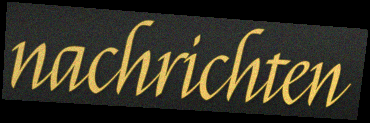
nachrichten